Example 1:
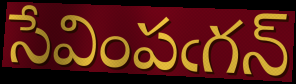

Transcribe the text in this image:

సేవింపఁగన్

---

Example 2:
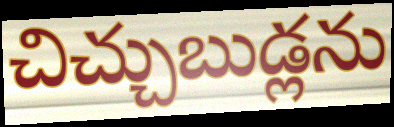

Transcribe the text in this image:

చిచ్చుబుడ్లను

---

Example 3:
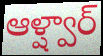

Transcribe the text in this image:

ఆళ్ష్వార్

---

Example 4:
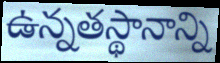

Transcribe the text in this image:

ఉన్నతస్థానాన్ని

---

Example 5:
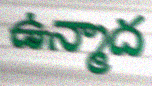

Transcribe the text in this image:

ఉన్మాద